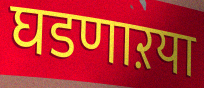
घडणाऱया